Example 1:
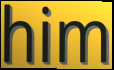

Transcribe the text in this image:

him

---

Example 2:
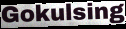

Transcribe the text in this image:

Gokulsing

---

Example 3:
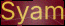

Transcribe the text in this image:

Syam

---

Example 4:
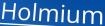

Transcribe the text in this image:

Holmium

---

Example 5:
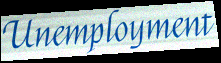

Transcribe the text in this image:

Unemployment